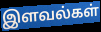
இளவல்கள்